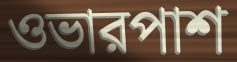
ওভারপাশ